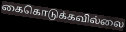
கைகொடுக்கவில்லை